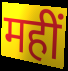
महीं